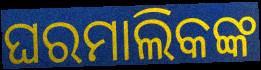
ଘରମାଲିକଙ୍କ